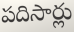
పదిసార్లు